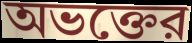
অভক্তের